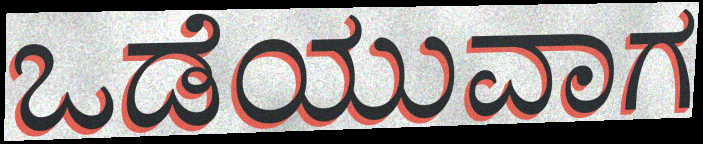
ಒಡೆಯುವಾಗ